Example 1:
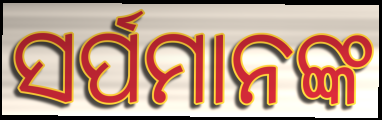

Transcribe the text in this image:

ସର୍ପମାନଙ୍କ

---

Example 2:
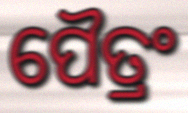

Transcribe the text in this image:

ପୈତ୍ରଂ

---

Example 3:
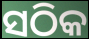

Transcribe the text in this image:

ସଠିକ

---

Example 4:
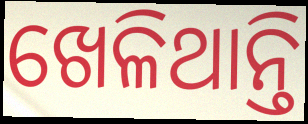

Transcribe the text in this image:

ଖେଳିଥାନ୍ତି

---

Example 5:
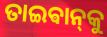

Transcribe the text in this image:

ତାଇଵାନ୍‌କୁ